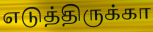
எடுத்திருக்கா